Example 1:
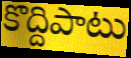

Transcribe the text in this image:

కొద్దిపాటు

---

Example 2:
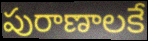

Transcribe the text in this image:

పురాణాలకే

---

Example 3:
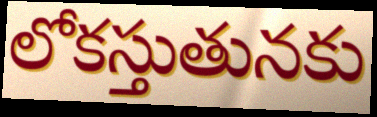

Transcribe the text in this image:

లోకస్తుతునకు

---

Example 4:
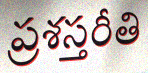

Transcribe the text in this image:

ప్రశస్తరీతి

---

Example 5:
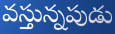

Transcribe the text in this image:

వస్తున్నపుడు